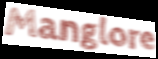
Manglore